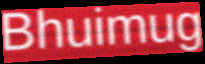
Bhuimug